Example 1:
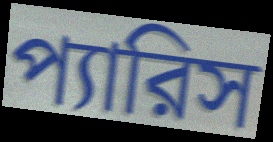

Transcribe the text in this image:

প্যারিস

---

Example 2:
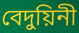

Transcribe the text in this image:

বেদুয়িনী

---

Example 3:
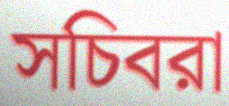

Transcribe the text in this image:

সচিবরা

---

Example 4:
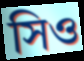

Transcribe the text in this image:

সিও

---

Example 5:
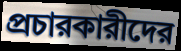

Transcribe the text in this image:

প্রচারকারীদের